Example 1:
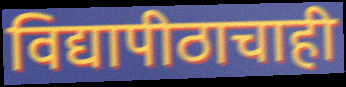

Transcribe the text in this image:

विद्यापीठाचाही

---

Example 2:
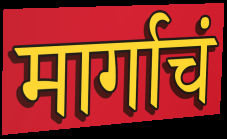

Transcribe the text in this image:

मार्गाचं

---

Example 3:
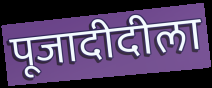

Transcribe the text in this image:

पूजादीदीला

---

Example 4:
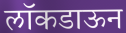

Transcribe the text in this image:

लॉकडाऊन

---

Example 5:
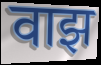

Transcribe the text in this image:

वाझ